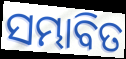
ସମ୍ଭାବିତ